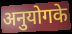
अनुयोगके